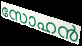
സോഹൻ